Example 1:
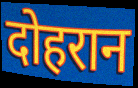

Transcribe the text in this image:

दोहरान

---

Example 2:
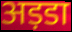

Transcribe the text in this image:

अड़डा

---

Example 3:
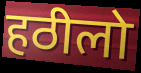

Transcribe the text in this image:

हठीलो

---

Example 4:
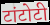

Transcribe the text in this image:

टांटोटी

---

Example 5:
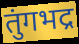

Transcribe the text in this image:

तुंगभद्र